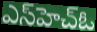
ఎస్‌హెచ్ఓ